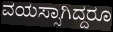
ವಯಸ್ಸಾಗಿದ್ದರೂ